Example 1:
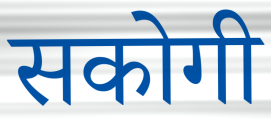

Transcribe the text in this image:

सकोगी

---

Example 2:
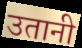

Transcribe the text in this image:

उतानी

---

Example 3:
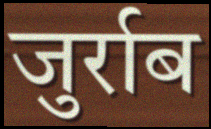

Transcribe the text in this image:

जुर्राब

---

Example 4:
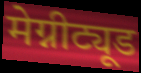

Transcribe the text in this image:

मेग्नीट्यूड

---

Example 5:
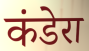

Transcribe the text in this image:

कंडेरा